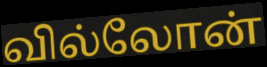
வில்லோன்